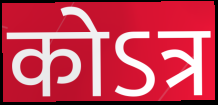
कोऽत्र